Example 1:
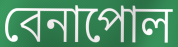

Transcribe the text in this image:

বেনাপোল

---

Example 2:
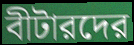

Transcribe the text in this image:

বীটারদের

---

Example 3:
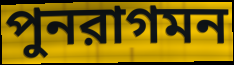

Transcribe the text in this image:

পুনরাগমন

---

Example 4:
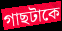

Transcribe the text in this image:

গাছটাকে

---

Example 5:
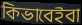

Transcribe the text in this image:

কিভাবেইবা